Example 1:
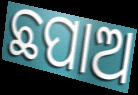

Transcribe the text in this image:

ଛପାଅ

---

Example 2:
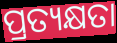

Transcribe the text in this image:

ପ୍ରତ୍ୟକ୍ଷତା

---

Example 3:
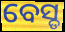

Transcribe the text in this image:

ବେସ୍ଡ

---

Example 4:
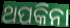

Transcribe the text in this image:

ଥପକିନା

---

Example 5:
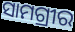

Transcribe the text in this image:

ସାମଗ୍ରୀର